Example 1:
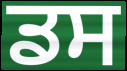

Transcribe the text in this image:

ਡਸ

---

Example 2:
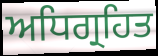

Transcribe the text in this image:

ਅਧਿਗ੍ਰਹਿਤ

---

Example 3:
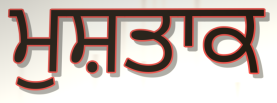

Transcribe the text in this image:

ਮੁਸ਼ਤਾਕ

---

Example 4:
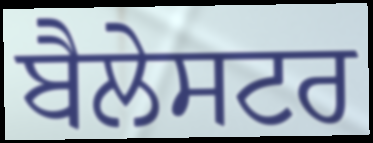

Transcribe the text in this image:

ਬੈਲੇਸਟਰ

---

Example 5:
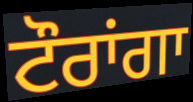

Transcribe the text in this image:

ਟੌਰਾਂਗਾ